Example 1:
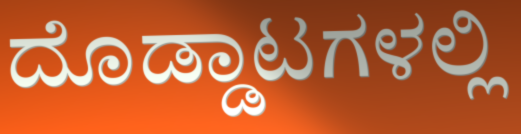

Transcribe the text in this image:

ದೊಡ್ಡಾಟಗಳಲ್ಲಿ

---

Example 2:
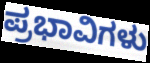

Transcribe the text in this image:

ಪ್ರಭಾವಿಗಳು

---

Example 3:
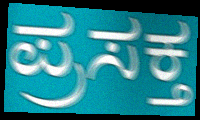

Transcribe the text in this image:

ಪ್ರಸಕ್ತ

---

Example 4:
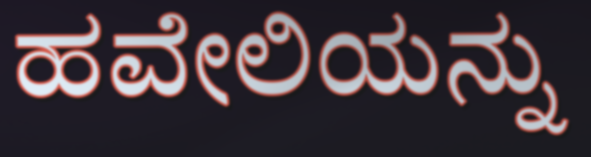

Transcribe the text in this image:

ಹವೇಲಿಯನ್ನು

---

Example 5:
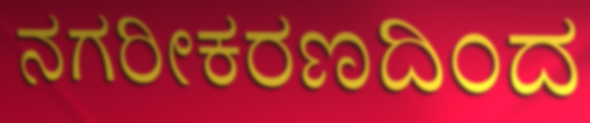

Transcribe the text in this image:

ನಗರೀಕರಣದಿಂದ